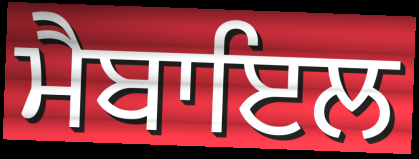
ਮੈਬਾਇਲ